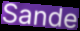
Sande